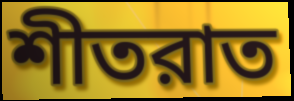
শীতরাত